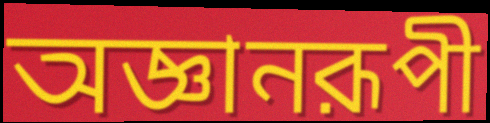
অজ্ঞানরূপী